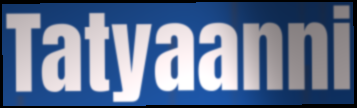
Tatyaanni